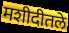
मशीदीतले